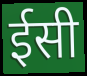
ईसी